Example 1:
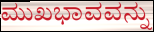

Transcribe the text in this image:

ಮುಖಭಾವವನ್ನು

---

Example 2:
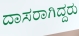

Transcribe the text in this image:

ದಾಸರಾಗಿದ್ದರು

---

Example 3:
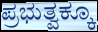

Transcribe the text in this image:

ಪ್ರಭುತ್ವಕ್ಕೂ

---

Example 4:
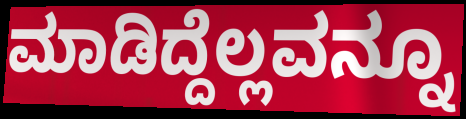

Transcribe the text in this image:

ಮಾಡಿದ್ದೆಲ್ಲವನ್ನೂ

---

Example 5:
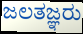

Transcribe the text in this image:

ಜಲತಜ್ಞರು